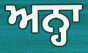
ਅਨ੍ਹਾ